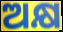
ଅକ୍ଷ